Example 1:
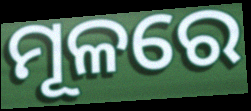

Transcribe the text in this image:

ମୂଳରେ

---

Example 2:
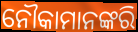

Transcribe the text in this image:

ନୌକାମାନଙ୍କରି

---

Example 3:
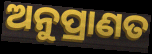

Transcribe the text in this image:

ଅନୁପ୍ରାଣତ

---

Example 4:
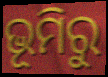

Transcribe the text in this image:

ଭୂମିରୁ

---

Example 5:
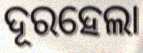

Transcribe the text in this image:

ଦୂରହେଲା